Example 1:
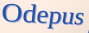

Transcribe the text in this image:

Odepus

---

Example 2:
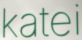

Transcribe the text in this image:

katei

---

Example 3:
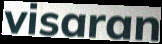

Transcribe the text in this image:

visaran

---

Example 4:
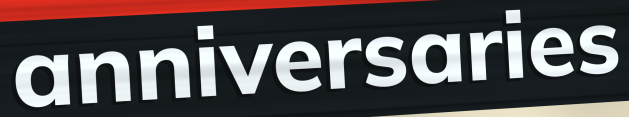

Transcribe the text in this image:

anniversaries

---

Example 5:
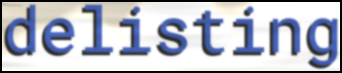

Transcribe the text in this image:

delisting